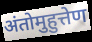
अंतोमुहुत्तेण